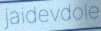
jaidevdole